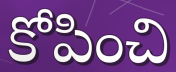
కోపించి